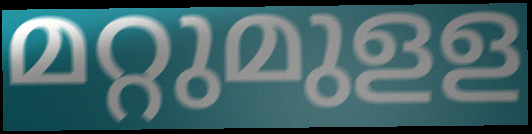
മറ്റുമുളള